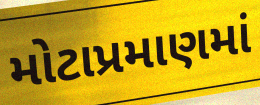
મોટાપ્રમાણમાં